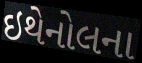
ઇથેનોલના